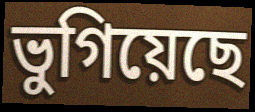
ভুগিয়েছে